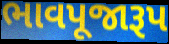
ભાવપૂજારૂપ